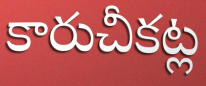
కారుచీకట్ల